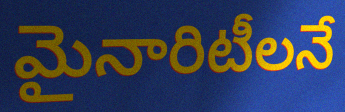
మైనారిటీలనే